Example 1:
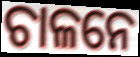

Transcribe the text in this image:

ଚାଳନେ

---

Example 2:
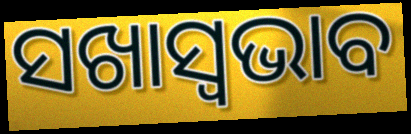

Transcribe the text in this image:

ସଖାସ୍ୱଭାବ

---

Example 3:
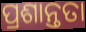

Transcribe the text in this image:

ପ୍ରଶାନ୍ତତା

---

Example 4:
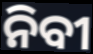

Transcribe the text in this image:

ନିବୀ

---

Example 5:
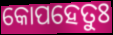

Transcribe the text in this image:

କୋପହେତୁଃ